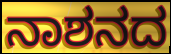
ನಾಶನದ